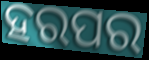
ହରପର